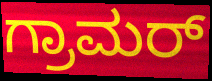
ಗ್ರಾಮರ್